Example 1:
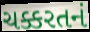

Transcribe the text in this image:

ચક્કરતનં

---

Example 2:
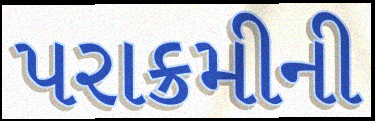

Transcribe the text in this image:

પરાક્રમીની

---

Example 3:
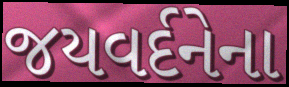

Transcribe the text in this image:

જયવર્દનેના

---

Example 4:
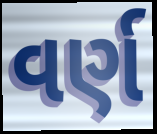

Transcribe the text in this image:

વર્ણ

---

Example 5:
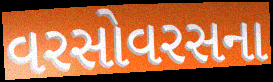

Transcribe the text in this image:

વરસોવરસના